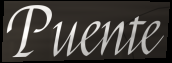
Puente